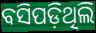
ବସିପଡ଼ିଥିଲି